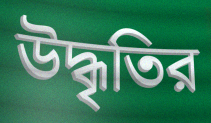
উদ্ধৃতির